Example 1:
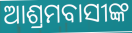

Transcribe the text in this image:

ଆଶ୍ରମବାସୀଙ୍କ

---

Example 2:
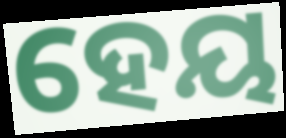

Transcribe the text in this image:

ହେୟ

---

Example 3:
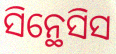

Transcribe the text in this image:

ସିନ୍ଥେସିସ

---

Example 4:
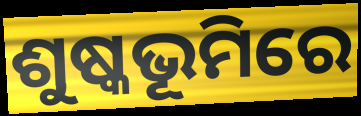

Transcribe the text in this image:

ଶୁଷ୍କଭୂମିରେ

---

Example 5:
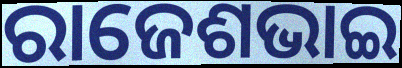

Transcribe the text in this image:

ରାଜେଶଭାଇ